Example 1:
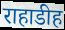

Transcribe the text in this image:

राहाडीह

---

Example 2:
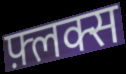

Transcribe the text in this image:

फ़्लक्स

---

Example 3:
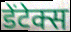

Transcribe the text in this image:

डेंटेक्स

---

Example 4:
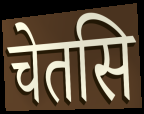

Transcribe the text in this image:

चेतसि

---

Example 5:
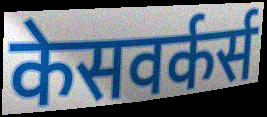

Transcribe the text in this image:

केसवर्कर्स